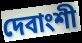
দেবাংশী